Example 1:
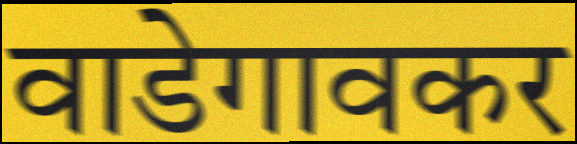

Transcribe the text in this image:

वाडेगावकर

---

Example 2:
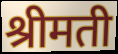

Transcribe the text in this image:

श्रीमती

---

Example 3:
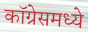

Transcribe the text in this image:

कॉग्रेसमध्ये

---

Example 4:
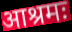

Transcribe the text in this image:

आश्रमः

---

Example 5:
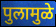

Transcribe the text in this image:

पुलामुळे